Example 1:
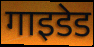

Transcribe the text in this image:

गाइडेड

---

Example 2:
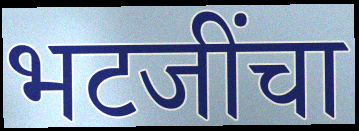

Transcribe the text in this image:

भटजींचा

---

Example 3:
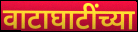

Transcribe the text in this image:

वाटाघाटींच्या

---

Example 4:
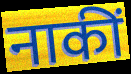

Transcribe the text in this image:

नाकीं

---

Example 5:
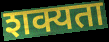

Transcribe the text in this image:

शक्यता